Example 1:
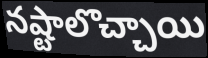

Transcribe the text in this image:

నష్టాలొచ్చాయి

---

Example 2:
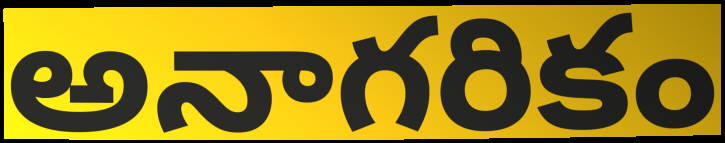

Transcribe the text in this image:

అనాగరికం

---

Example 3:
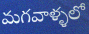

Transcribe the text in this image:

మగవాళ్ళలో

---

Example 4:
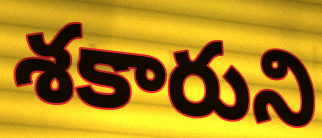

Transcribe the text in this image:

శకారుని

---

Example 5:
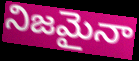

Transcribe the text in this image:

నిజమైనా